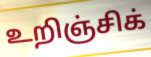
உறிஞ்சிக்